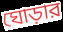
ঘোড়ার